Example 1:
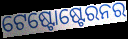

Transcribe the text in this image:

ଟେଷ୍ଟୋଷ୍ଟେରନର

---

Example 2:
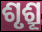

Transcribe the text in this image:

ଶୃଶ୍ରୂ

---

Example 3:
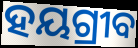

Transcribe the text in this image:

ହୟଗ୍ରୀବ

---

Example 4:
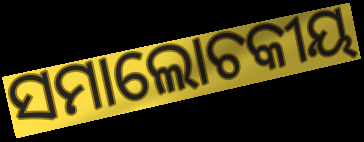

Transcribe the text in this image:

ସମାଲୋଚକୀୟ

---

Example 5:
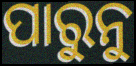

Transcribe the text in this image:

ପାରୁନୁ